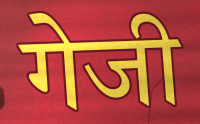
गेजी